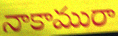
నాకామురా